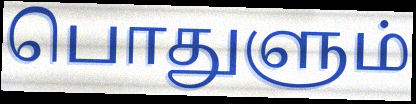
பொதுளும்